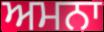
ਅਮਨਾ